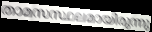
താമസസ്ഥലമായിരുന്നു